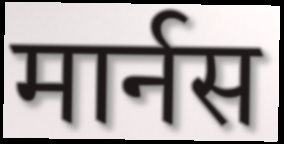
मार्नस